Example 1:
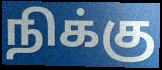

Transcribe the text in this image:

நிக்கு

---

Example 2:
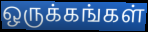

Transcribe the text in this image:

ஒருக்கங்கள்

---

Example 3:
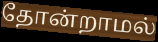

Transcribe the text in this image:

தோன்றாமல்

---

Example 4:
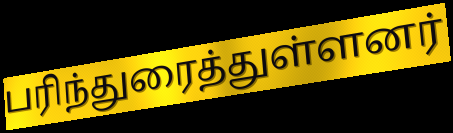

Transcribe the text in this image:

பரிந்துரைத்துள்ளனர்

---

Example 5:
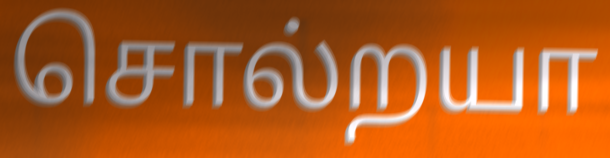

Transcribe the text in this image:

சொல்றயா